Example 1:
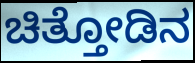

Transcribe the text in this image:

ಚಿತ್ತೋಡಿನ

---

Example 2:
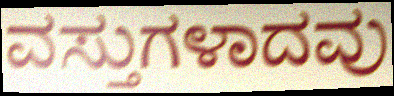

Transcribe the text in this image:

ವಸ್ತುಗಳಾದವು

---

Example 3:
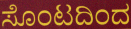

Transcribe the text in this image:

ಸೊಂಟದಿಂದ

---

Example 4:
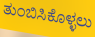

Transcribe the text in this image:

ತುಂಬಿಸಿಕೊಳ್ಳಲು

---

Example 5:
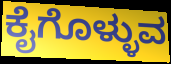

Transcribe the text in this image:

ಕೈಗೊಳ್ಳುವ